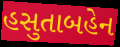
હસુતાબહેન